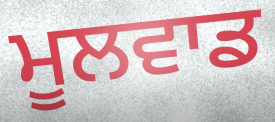
ਮੂਲਵਾਡ